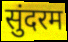
सुंदरम